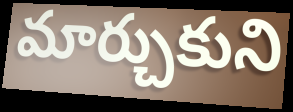
మార్చుకుని